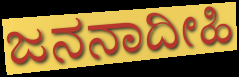
ಜನನಾದೀಹಿ